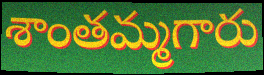
శాంతమ్మగారు